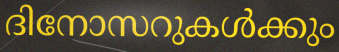
ദിനോസറുകൾക്കും